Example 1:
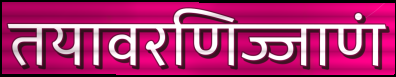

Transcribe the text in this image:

तयावरणिज्जाणं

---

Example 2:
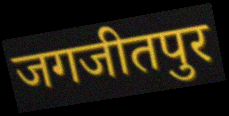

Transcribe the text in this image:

जगजीतपुर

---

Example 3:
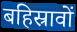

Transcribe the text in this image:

बहिस्रावों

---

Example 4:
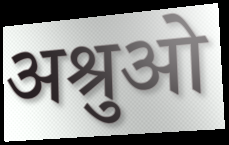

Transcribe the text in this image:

अश्रुओ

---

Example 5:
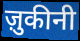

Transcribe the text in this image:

ज़ुकीनी